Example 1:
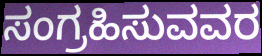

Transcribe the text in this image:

ಸಂಗ್ರಹಿಸುವವರ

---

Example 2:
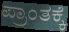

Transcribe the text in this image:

ಪ್ರಾಂತಕ್ಕೆ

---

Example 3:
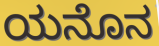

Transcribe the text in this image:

ಯನೊನ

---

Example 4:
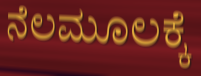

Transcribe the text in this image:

ನೆಲಮೂಲಕ್ಕೆ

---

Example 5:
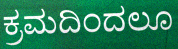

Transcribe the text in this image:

ಕ್ರಮದಿಂದಲೂ